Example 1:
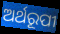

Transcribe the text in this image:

ଅର୍ଥରୂପୀ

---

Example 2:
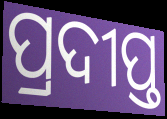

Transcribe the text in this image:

ପ୍ରଦୀପ୍ତ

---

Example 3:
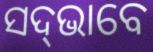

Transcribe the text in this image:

ସଦ୍‌ଭାବେ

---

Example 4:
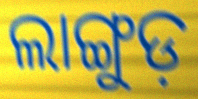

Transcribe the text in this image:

ଲାଙ୍ଗୁଡ଼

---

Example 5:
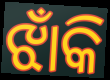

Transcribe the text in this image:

ଝାଁକି